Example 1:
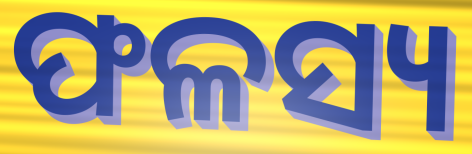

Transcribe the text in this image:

ଫଳସ୍ୟ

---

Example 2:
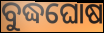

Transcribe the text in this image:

ବୁଦ୍ଧଘୋଷ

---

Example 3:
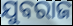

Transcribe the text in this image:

ଯୁବରାଜ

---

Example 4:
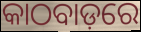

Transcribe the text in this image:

କାଠବାଡ଼ରେ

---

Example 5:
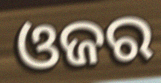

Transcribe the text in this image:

ଓଜର